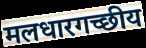
मलधारगच्छीय